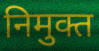
निमुक्त